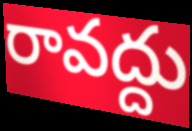
రావద్దు